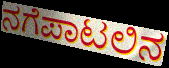
ನಗೆಪಾಟಲಿನ